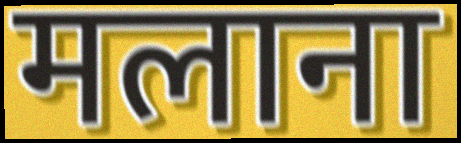
मलाना